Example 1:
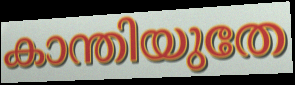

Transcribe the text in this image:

കാന്തിയുതേ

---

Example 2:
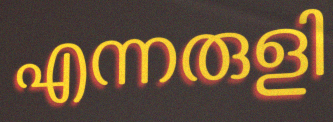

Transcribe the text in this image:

എന്നരുളി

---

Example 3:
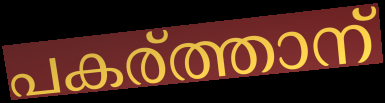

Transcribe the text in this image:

പകര്ത്താന്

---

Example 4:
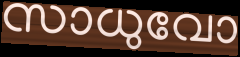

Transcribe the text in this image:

സാധുവോ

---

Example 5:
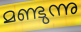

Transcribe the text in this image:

മണ്ടുന്നു